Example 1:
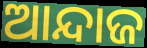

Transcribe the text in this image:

ଆନ୍ଦାଜ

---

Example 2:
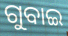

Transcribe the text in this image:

ଗୁବାଇ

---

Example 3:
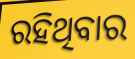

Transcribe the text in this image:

ରହିଥିବାର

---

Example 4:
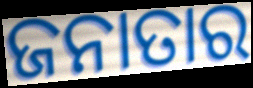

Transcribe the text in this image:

ଜନାତାର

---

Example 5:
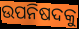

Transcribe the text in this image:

ଉପନିଷଦକୁ